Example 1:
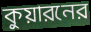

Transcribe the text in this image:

কুয়ারনের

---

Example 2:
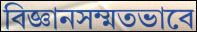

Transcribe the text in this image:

বিজ্ঞানসম্মতভাবে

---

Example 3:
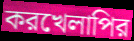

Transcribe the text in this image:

করখেলাপির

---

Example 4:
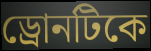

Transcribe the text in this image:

ড্রোনটিকে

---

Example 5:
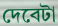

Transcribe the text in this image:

দেবেটা